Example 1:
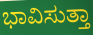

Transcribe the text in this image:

ಭಾವಿಸುತ್ತಾ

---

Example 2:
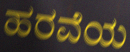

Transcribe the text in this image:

ಹರವೆಯ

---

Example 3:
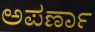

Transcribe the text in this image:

ಅಪರ್ಣಾ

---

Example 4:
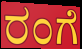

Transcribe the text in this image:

ರಂಗೆ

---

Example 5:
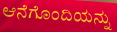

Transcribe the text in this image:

ಆನೆಗೊಂದಿಯನ್ನು